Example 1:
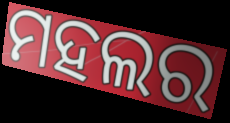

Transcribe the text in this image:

ମହଲର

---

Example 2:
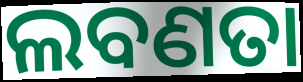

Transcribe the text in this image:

ଲବଣତା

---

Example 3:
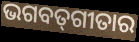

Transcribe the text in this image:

ଭଗବତ୍‍ଗୀତାର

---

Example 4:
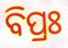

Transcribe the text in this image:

ବିପ୍ରଃ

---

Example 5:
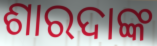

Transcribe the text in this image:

ଶାରଦାଙ୍କ